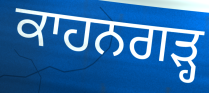
ਕਾਹਨਗੜ੍ਹ